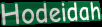
Hodeidah